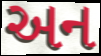
અન